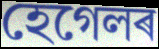
হেগেলৰ